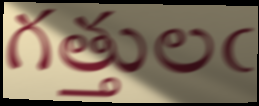
గత్తులఁ